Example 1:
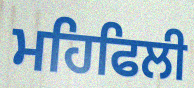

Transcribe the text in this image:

ਮਹਿਫਿਲੀ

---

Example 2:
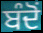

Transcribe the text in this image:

ਬੰਦੋਂ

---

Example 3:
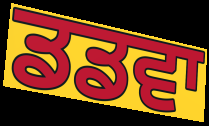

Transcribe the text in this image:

ਡਡਵਾ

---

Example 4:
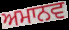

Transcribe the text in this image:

ਅਮਾਨਵ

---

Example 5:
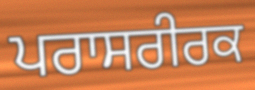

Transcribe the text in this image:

ਪਰਾਸਰੀਰਕ